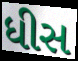
ધીસ